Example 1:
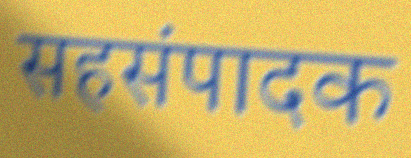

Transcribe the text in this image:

सहसंपादक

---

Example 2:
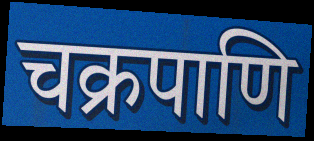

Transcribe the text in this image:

चक्रपाणि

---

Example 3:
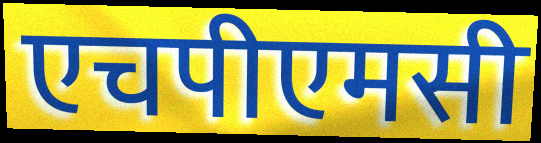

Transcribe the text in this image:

एचपीएमसी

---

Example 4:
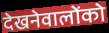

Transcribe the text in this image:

देखनेवालोंको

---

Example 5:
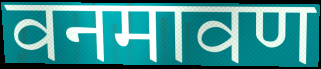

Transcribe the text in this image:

वनमावण